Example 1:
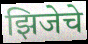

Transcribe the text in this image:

झिजेचे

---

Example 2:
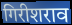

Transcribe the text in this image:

गिरीशराव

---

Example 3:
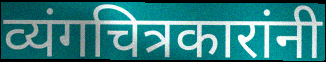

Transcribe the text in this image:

व्यंगचित्रकारांनी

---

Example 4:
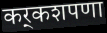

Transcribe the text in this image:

कर्कशपणा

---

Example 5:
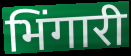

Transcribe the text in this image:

भिंगारी